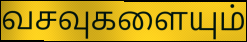
வசவுகளையும்